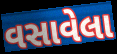
વસાવેલા